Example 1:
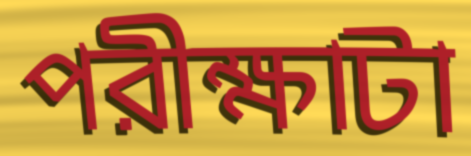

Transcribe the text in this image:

পরীক্ষাটা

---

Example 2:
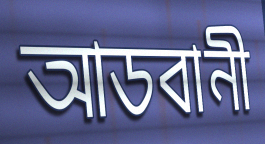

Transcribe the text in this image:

আডবানী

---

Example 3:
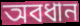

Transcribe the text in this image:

অবধান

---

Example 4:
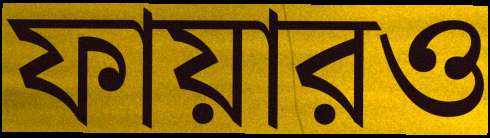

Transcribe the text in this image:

ফায়ারও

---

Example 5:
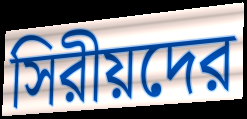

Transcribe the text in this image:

সিরীয়দের